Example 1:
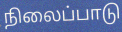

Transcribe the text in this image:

நிலைப்பாடு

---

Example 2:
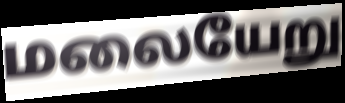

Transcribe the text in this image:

மலையேறு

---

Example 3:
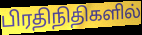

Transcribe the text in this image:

பிரதிநிதிகளில்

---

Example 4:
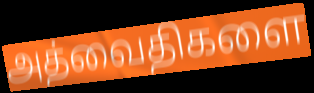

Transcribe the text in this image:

அத்வைதிகளை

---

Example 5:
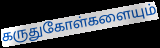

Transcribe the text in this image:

கருதுகோள்களையும்